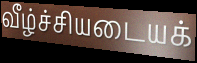
வீழ்ச்சியடையக்